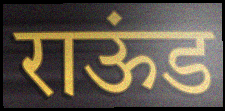
राऊंड